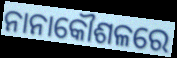
ନାନାକୌଶଳରେ